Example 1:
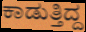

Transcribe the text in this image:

ಕಾಡುತ್ತಿದ್ದ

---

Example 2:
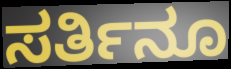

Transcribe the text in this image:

ಸರ್ತಿನೂ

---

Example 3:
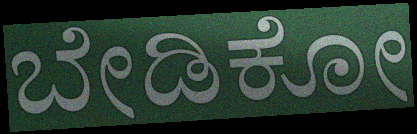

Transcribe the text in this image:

ಬೇಡಿಕೋ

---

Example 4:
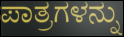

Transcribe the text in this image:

ಪಾತ್ರಗಳನ್ನು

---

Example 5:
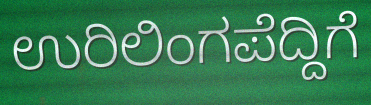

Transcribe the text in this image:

ಉರಿಲಿಂಗಪೆದ್ದಿಗೆ